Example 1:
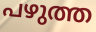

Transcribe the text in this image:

പഴുത്ത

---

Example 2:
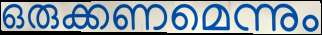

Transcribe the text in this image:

ഒരുക്കണമെന്നും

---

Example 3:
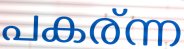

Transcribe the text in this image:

പകര്ന്ന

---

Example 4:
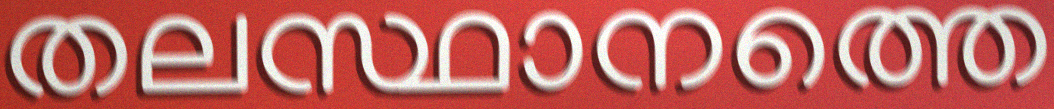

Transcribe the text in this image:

തലസ്ഥാനത്തെ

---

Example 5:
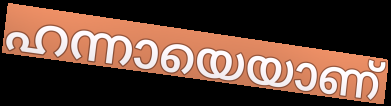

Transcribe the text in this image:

ഹന്നായെയാണ്